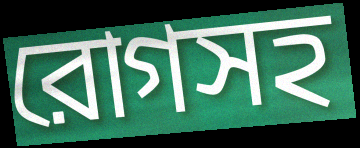
রোগসহ